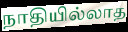
நாதியில்லாத